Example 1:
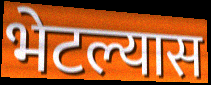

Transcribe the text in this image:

भेटल्यास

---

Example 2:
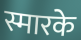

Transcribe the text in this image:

स्मारके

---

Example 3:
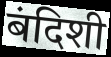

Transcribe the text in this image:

बंदिशी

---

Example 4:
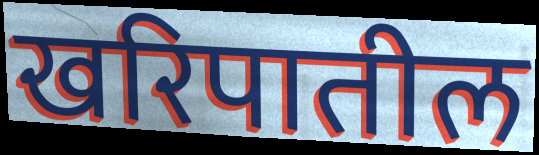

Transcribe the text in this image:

खरिपातील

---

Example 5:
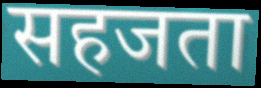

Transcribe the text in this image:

सहजता